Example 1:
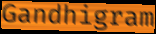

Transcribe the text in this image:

Gandhigram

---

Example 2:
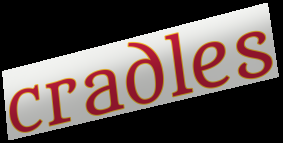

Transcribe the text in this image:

cradles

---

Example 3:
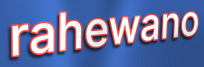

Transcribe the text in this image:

rahewano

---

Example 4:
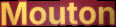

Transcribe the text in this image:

Mouton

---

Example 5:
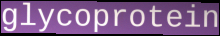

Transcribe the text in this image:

glycoprotein